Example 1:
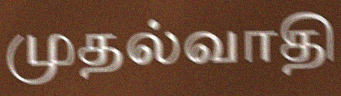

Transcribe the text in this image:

முதல்வாதி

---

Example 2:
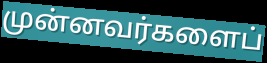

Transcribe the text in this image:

முன்னவர்களைப்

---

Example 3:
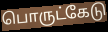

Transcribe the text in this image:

பொருட்கேடு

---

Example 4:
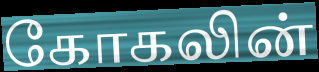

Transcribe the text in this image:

கோகலின்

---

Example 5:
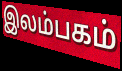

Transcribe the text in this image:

இலம்பகம்